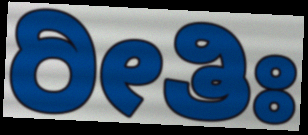
ರೀತಿಃ